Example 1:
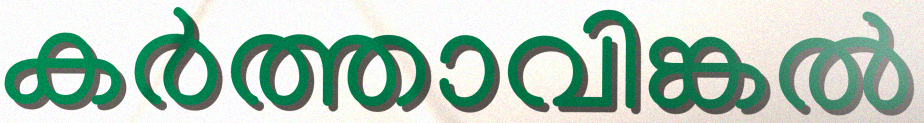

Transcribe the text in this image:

കർത്താവിങ്കൽ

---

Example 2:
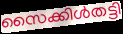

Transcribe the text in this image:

സൈക്കിൾതട്ടി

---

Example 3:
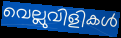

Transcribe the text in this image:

വെല്ലുവിളികൾ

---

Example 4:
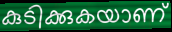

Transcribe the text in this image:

കുടിക്കുകയാണ്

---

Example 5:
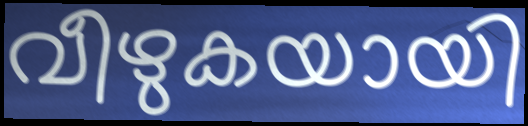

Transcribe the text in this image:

വീഴുകയായി